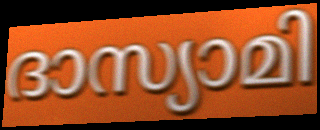
ദാസ്യാമി